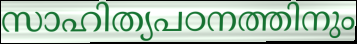
സാഹിത്യപഠനത്തിനും